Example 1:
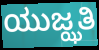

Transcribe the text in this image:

ಯುಜ್ಝತಿ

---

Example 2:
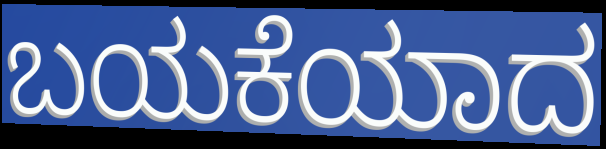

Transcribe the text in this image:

ಬಯಕೆಯಾದ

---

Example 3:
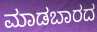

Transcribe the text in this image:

ಮಾಡಬಾರದ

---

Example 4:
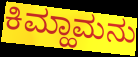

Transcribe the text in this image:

ಕಿಮ್ಹಾಮನು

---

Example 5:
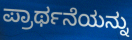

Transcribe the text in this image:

ಪ್ರಾರ್ಥನೆಯನ್ನು